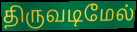
திருவடிமேல்